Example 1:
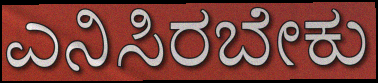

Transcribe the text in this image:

ಎನಿಸಿರಬೇಕು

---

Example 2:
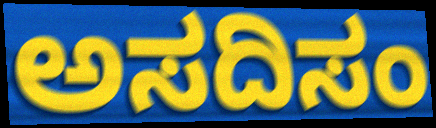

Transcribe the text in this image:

ಅಸದಿಸಂ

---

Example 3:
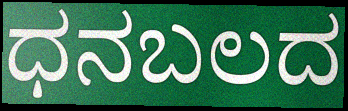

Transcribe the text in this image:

ಧನಬಲದ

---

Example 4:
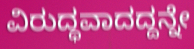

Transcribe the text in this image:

ವಿರುದ್ಧವಾದದ್ದನ್ನೇ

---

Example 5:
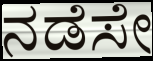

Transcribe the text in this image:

ನಡೆಸೇ